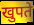
खुपते